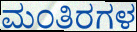
ಮಂತಿರಗಳ